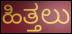
ಹಿತ್ತಲು